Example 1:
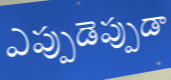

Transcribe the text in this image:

ఎప్పుడెప్పుడా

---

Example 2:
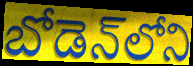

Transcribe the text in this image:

బోడెన్‌లోని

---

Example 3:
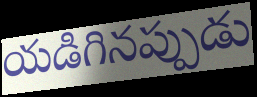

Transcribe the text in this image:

యడిగినప్పుడు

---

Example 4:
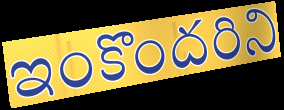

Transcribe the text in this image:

ఇంకొందరిని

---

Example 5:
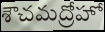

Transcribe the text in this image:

శౌచమద్రోహో